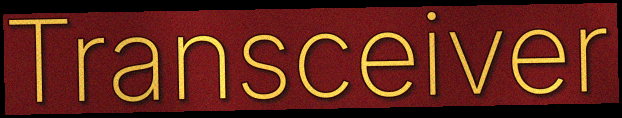
Transceiver